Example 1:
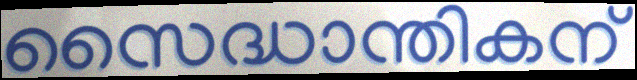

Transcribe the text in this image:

സൈദ്ധാന്തികന്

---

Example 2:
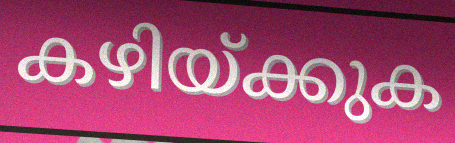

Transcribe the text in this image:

കഴിയ്ക്കുക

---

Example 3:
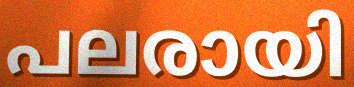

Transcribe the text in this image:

പലരായി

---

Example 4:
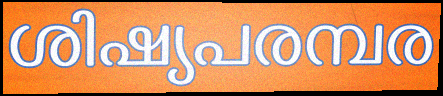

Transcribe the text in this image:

ശിഷ്യപരമ്പര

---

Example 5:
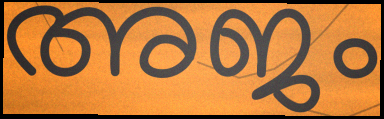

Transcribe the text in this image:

അജം